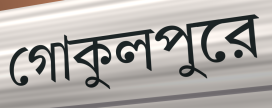
গোকুলপুরে